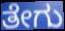
ತೇಗು